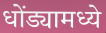
धोंड्यामध्ये